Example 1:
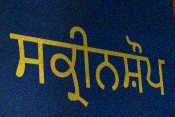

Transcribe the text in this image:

ਸਕ੍ਰੀਨਸ਼ੌਪ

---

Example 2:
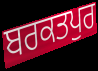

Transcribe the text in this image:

ਬਰਕਤਪੁਰ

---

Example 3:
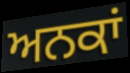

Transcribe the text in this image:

ਅਨਕਾਂ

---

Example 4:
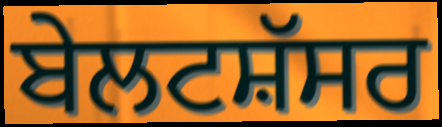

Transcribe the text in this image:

ਬੇਲਟਸ਼ੱਸਰ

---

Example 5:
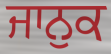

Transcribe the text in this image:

ਜਾਨੁਕ